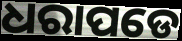
ଧରାପଡେ